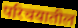
परिचयातील